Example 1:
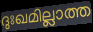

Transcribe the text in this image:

ദുഃഖമില്ലാത്ത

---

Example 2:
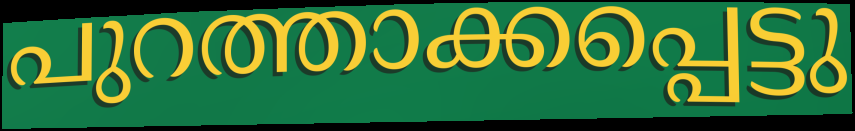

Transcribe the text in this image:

പുറത്താക്കപ്പെട്ടു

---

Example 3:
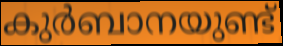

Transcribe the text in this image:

കുർബാനയുണ്ട്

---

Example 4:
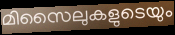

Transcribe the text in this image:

മിസൈലുകളുടെയും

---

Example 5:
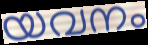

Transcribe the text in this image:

യവനം